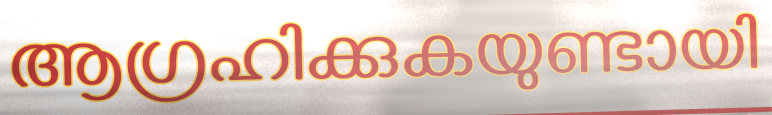
ആഗ്രഹിക്കുകയുണ്ടായി